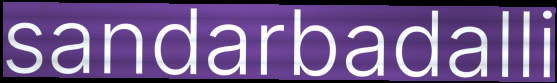
sandarbadalli